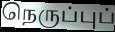
நெருப்புப்